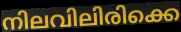
നിലവിലിരിക്കെ